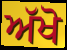
ਅੱਖੋ